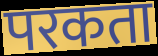
परकता